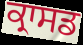
ਕ੍ਰਾਸਡ